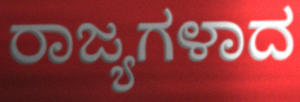
ರಾಜ್ಯಗಳಾದ